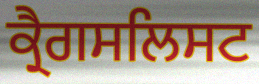
ਕ੍ਰੈਗਸਲਿਸਟ